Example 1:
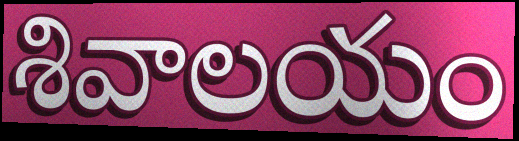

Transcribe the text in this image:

శివాలయం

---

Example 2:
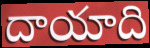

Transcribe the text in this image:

దాయాది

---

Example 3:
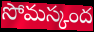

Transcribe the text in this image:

సోమస్కంద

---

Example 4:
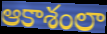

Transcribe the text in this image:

ఆకాశంలా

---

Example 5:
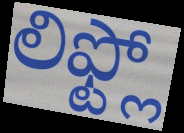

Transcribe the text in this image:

లిఫ్ట్లో